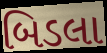
બિડલા